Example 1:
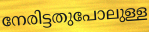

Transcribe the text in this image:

നേരിട്ടതുപോലുള്ള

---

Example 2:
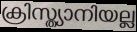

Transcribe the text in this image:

ക്രിസ്ത്യാനിയല്ല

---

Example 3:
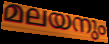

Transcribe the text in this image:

മലയനും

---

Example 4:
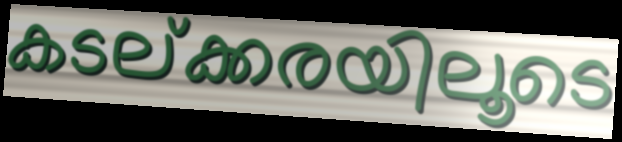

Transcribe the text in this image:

കടല്ക്കരയിലൂടെ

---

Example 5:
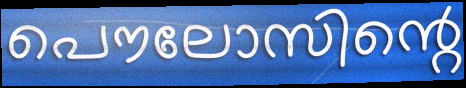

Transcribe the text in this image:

പൌലോസിന്റെ